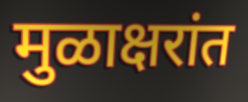
मुळाक्षरांत